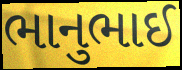
ભાનુભાઈ